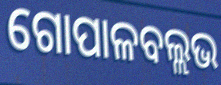
ଗୋପାଳବଲ୍ଲଭ